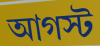
আগস্ট